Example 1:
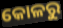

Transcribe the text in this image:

କୋଳରୁ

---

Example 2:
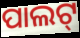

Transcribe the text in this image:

ପାଲଟ୍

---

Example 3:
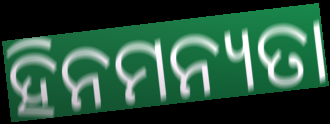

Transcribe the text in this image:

ହିନମନ୍ୟତା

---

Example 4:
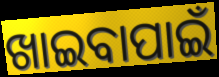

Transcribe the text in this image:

ଖାଇବାପାଇଁ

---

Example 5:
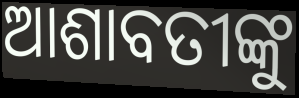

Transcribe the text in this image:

ଆଶାବତୀଙ୍କୁ